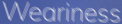
Weariness